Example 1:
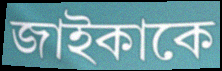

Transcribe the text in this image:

জাইকাকে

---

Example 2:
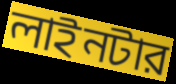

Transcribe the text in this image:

লাইনটার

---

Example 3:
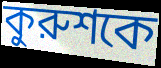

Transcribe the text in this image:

কুরুশকে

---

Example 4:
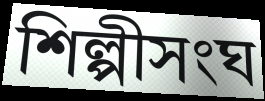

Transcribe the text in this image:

শিল্পীসংঘ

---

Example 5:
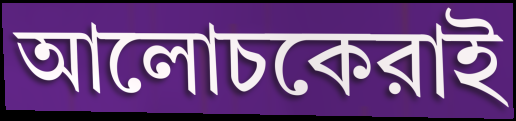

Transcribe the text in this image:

আলোচকেরাই